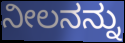
ನೀಲನನ್ನು